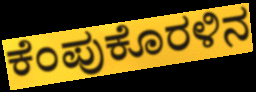
ಕೆಂಪುಕೊರಳಿನ